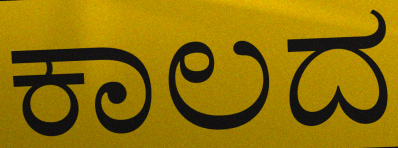
ಕಾಲದ